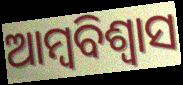
ଆମ୍ବବିଶ୍ଵାସ